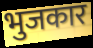
भुजकार